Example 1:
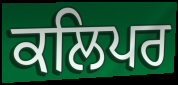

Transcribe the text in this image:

ਕਲਿਪਰ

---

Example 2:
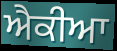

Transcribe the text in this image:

ਐਕੀਆ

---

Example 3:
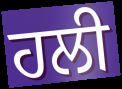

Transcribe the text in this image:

ਹਲੀ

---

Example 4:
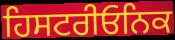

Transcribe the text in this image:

ਹਿਸਟਰੀਓਨਿਕ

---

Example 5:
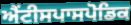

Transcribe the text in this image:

ਐਂਟੀਸਪਾਸਪੋਡਿਕ